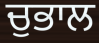
ਚੁਭਾਲ